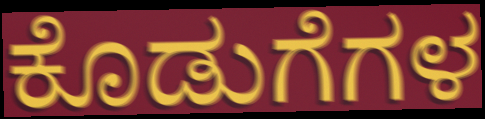
ಕೊಡುಗೆಗಳ